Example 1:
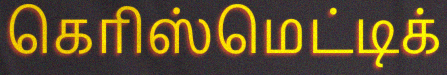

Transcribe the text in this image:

கெரிஸ்மெட்டிக்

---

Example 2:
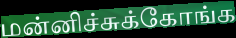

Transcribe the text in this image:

மன்னிச்சுக்கோங்க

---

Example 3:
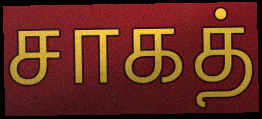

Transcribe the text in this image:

சாகத்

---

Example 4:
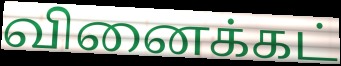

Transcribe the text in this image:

வினைக்கட்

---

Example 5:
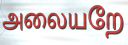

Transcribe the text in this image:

அலையறே